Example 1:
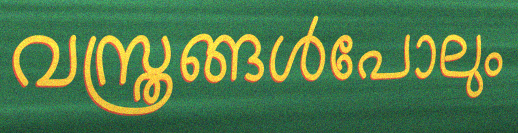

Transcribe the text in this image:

വസ്ത്രങ്ങൾപോലും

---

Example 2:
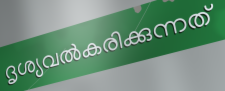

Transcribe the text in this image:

ദൃശ്യവൽകരിക്കുന്നത്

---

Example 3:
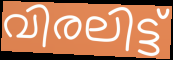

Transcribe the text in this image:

വിരലിട്ട്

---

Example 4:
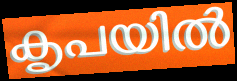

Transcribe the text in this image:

കൃപയിൽ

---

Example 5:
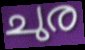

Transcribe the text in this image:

ചുര